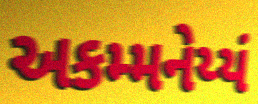
અકમ્મનેય્યં